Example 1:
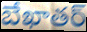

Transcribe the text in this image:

బేఖాతర్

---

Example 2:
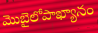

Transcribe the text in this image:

మొబైలోపాఖ్యానం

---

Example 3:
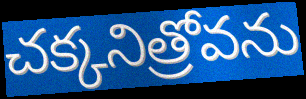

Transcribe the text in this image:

చక్కనిత్రోవను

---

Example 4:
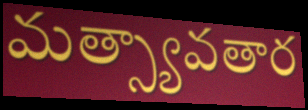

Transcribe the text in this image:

మత్స్యావతార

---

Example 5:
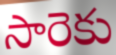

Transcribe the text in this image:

సారెకు